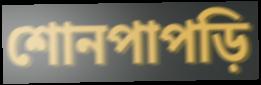
শোনপাপড়ি